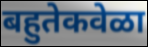
बहुतेकवेळा